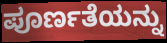
ಪೂರ್ಣತೆಯನ್ನು